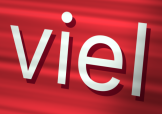
viel